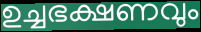
ഉച്ചഭക്ഷണവും